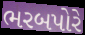
ભરબપોરે